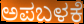
ಅಪಬಳಕೆ